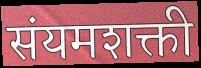
संयमशक्ती